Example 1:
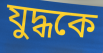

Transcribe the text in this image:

যুদ্ধকে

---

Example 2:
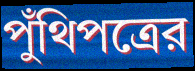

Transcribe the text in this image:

পুঁথিপত্রের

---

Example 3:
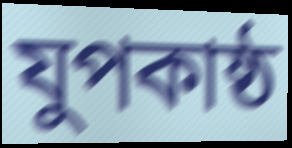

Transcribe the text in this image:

যুপকাষ্ঠ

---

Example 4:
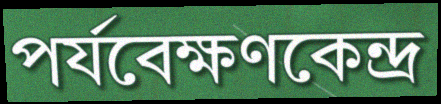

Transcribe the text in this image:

পর্যবেক্ষণকেন্দ্র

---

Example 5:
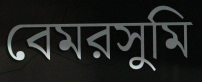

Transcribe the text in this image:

বেমরসুমি